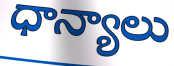
ధాన్యాలు